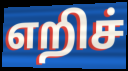
எறிச்